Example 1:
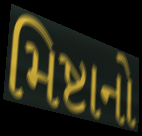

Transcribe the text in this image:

મિષ્ટાનો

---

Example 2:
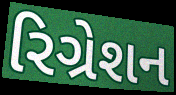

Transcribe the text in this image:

રિગ્રેશન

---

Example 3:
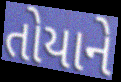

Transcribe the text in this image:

તોયાને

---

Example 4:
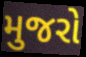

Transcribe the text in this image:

મુજરો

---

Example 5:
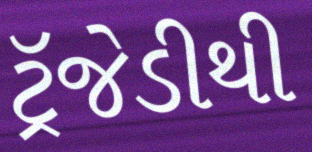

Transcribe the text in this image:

ટ્રૅજેડીથી